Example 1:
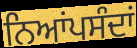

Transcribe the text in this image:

ਨਿਆਂਪਸੰਦਾਂ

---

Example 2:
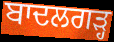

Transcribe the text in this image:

ਬਾਦਲਗੜ੍ਹ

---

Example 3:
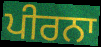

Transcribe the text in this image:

ਪੀਰਨਾ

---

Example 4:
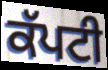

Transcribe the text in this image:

ਕੱਪਟੀ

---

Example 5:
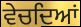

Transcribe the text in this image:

ਵੇਚਦਿਆਂ